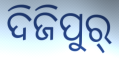
ଦିଜିପୁର୍